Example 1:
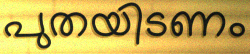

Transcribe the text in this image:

പുതയിടണം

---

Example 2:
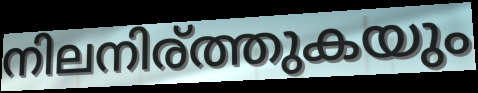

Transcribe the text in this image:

നിലനിര്ത്തുകയും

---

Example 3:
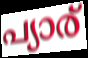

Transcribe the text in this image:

പ്യാര്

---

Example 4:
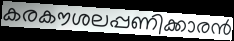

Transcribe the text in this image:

കരകൗശലപ്പണിക്കാരൻ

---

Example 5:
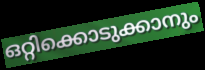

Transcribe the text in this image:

ഒറ്റിക്കൊടുക്കാനും